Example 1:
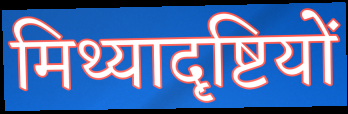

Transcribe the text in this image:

मिथ्यादृष्टियों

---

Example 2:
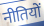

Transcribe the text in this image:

नीतियों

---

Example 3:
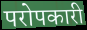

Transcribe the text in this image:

परोपकारी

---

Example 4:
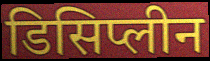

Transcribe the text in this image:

डिसिप्लीन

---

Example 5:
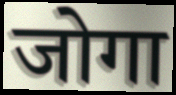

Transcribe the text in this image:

जोगा